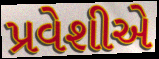
પ્રવેશીએ